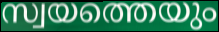
സ്വയത്തെയും